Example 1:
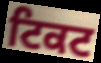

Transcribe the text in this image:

ਟਿਕਟ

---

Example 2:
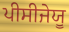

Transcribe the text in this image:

ਪੀਸੀਜੇਯੂ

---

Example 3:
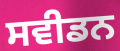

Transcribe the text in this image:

ਸਵੀਡਨ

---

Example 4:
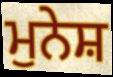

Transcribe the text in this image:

ਮੁਨੇਸ਼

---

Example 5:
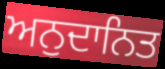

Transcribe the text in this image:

ਅਨੁਦਾਨਿਤ